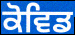
ਕੋਵਿਡ